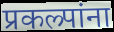
प्रकल्पांना